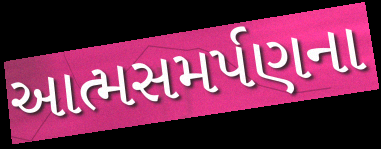
આત્મસમર્પણના